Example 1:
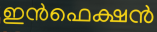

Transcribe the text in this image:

ഇൻഫെക്ഷൻ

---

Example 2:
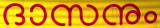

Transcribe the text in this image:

ദാസനും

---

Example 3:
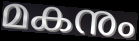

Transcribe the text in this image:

മകനും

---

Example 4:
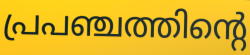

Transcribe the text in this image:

പ്രപഞ്ചത്തിന്റെ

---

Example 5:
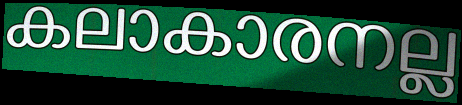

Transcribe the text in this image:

കലാകാരനല്ല